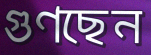
গুণছেন